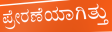
ಪ್ರೇರಣೆಯಾಗಿತ್ತು